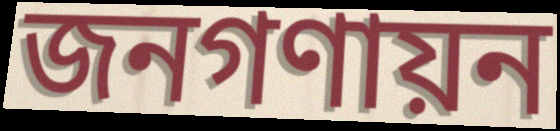
জনগণায়ন